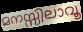
മനസ്സിലാവൂ